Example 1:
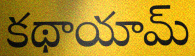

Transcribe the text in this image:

కథాయామ్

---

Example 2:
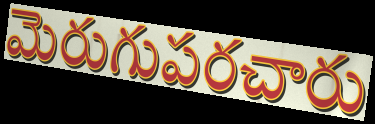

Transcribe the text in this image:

మెరుగుపరచారు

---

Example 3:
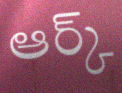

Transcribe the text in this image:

ఆర్క్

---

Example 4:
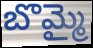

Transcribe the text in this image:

బొమ్మై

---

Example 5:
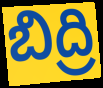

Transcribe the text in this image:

బిద్రి